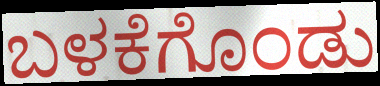
ಬಳಕೆಗೊಂಡು